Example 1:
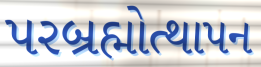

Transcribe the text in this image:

પરબ્રહ્મોત્થાપન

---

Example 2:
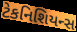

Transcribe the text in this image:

ટેકનિશિયન્સ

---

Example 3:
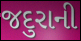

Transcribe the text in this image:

જદુરાની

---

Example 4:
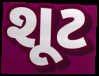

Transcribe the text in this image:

શૂટ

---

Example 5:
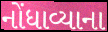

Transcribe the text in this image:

નોંધાવ્યાના